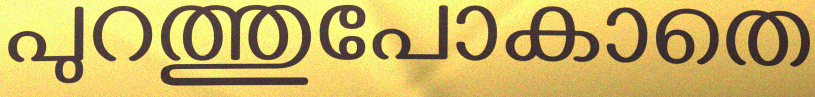
പുറത്തുപോകാതെ